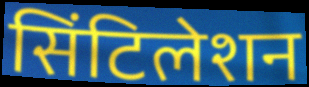
सिंटिलेशन